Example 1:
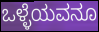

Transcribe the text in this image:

ಒಳ್ಳೆಯವನೂ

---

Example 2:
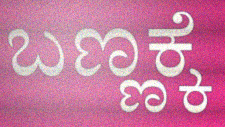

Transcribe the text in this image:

ಬಣ್ಣಕ್ಕೆ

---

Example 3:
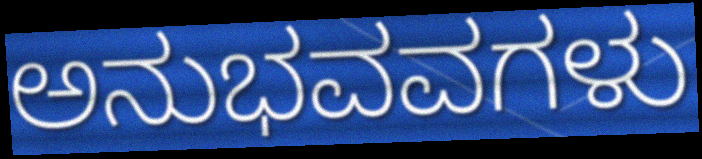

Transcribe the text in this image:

ಅನುಭವವಗಳು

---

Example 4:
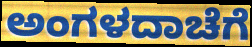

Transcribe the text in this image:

ಅಂಗಳದಾಚೆಗೆ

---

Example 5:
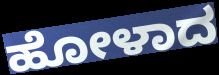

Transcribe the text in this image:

ಹೋಳಾದ